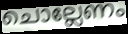
ചൊല്ലേണം